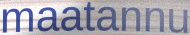
maatannu